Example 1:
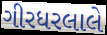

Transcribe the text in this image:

ગીરધરલાલે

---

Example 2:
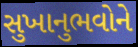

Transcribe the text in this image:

સુખાનુભવોને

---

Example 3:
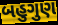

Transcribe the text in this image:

બહુગુણ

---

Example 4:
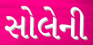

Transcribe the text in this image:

સોલેની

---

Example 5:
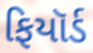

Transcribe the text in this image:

ફિયૉર્ડ